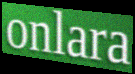
onlara